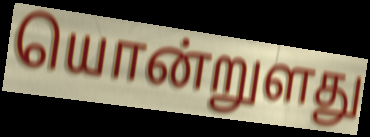
யொன்றுளது